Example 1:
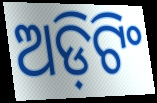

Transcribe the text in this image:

ଅଡ଼ିଟିଂ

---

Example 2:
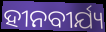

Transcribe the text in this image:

ହୀନବୀର୍ଯ୍ୟ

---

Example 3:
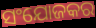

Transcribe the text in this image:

ସଂଯୋଜକର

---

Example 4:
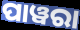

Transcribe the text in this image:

ପାୱରା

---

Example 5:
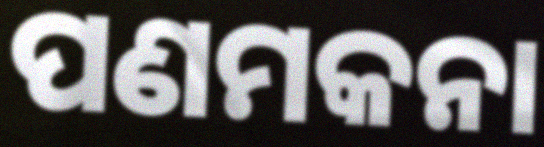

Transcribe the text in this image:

ପଣମକନା